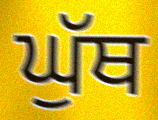
ਘੁੱਥ